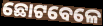
ଛୋଟବେଳେ